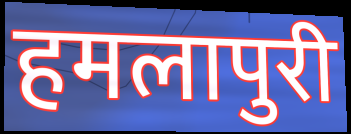
हमलापुरी